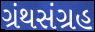
ગ્રંથસંગ્રહ